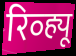
रिव्ह्यू